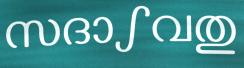
സദാഽവതു